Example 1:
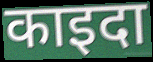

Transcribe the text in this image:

काइदा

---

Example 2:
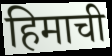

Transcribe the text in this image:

हिमाची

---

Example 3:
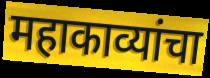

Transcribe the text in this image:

महाकाव्यांचा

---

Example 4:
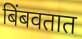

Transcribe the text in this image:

बिंबवतात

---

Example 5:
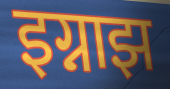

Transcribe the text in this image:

इग्नाझ